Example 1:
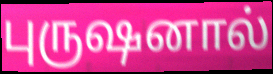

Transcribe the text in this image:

புருஷனால்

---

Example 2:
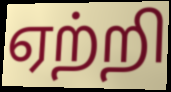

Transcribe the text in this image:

ஏற்றி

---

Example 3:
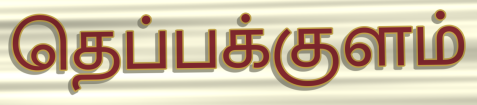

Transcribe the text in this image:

தெப்பக்குளம்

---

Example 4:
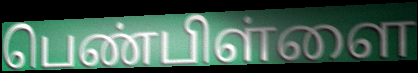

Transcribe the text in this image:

பெண்பிள்ளை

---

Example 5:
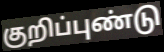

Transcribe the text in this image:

குறிப்புண்டு